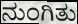
ನುಂಗಿತು